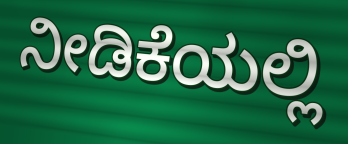
ನೀಡಿಕೆಯಲ್ಲಿ